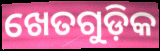
ଖେତଗୁଡ଼ିକ